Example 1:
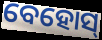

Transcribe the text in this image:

ବେହୋସ୍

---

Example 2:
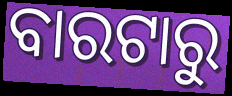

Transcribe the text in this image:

ବାରଟାରୁ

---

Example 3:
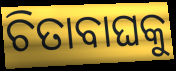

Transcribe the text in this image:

ଚିତାବାଘକୁ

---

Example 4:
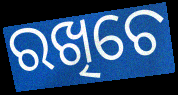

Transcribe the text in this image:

ରଖିଚେ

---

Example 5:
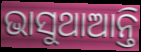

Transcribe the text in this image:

ଭାସୁଥାଆନ୍ତି